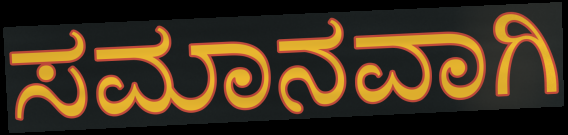
ಸಮಾನವಾಗಿ